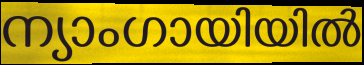
ന്യാംഗായിയിൽ